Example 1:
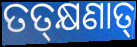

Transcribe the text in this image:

ତତ୍କ୍ଷଣାତ୍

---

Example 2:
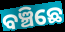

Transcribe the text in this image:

ବଞ୍ଚିଛେ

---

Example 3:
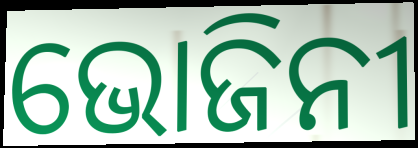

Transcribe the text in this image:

ଭୋଜିନୀ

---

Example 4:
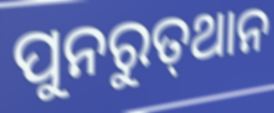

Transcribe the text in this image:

ପୁନରୁତ୍‌ଥାନ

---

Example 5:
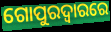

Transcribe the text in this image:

ଗୋପୁରଦ୍ବାରରେ